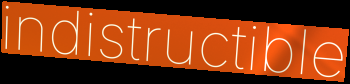
indistructible